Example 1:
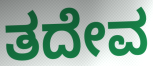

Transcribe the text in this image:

ತದೇವ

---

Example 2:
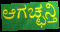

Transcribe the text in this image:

ಆಗಚ್ಛನ್ತಿ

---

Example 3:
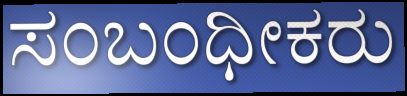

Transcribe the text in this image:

ಸಂಬಂಧೀಕರು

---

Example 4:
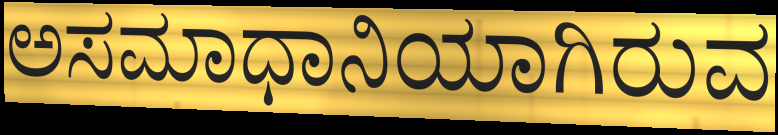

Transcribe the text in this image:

ಅಸಮಾಧಾನಿಯಾಗಿರುವ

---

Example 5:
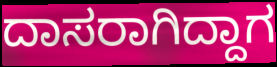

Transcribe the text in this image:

ದಾಸರಾಗಿದ್ದಾಗ